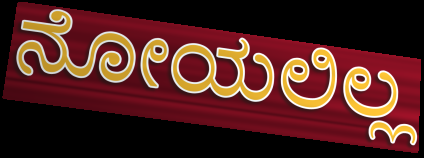
ನೋಯಲಿಲ್ಲ